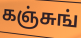
கஞ்சுங்